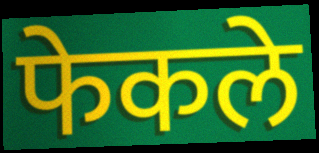
फेकले